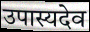
उपास्यदेव